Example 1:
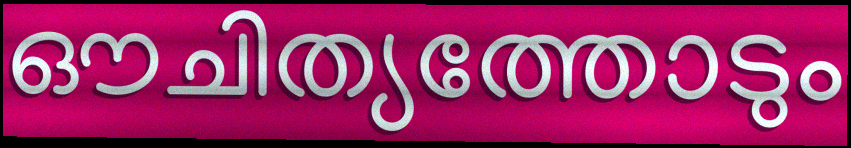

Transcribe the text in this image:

ഔചിത്യത്തോടും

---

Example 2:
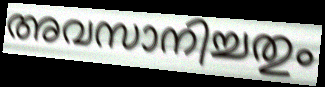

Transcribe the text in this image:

അവസാനിച്ചതും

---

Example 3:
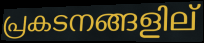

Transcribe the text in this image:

പ്രകടനങ്ങളില്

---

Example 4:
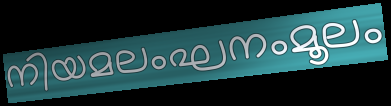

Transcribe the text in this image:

നിയമലംഘനംമൂലം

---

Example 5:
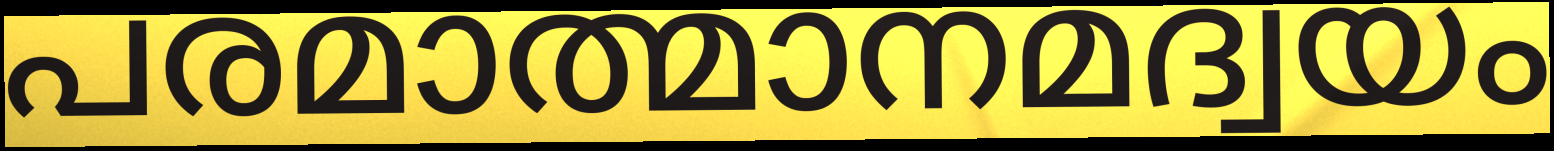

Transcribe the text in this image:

പരമാത്മാനമദ്വയം